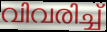
വിവരിച്ച്